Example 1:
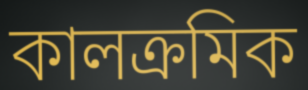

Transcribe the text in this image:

কালক্ৰমিক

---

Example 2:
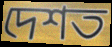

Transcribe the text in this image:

দেশত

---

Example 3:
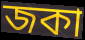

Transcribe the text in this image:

জকা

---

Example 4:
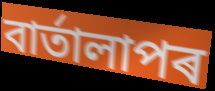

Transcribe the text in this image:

বাৰ্তালাপৰ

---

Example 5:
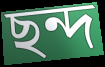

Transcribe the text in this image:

ছন্দ